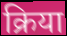
क्रिया